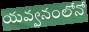
యవ్వనంలోనో